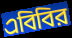
এবিবির